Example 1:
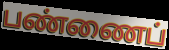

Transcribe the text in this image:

பண்ணைப்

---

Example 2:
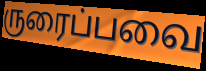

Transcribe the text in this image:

ருரைப்பவை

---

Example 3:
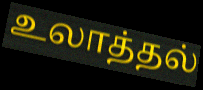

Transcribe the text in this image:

உலாத்தல்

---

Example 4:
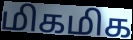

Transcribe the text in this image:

மிகமிக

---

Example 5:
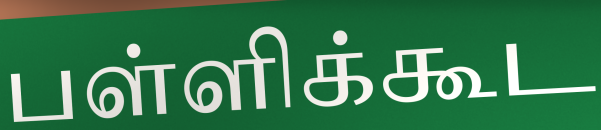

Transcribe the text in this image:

பள்ளிக்கூட